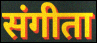
संगीता